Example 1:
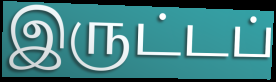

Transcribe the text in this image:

இருட்டப்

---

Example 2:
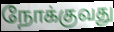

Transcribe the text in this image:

நோக்குவது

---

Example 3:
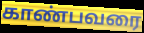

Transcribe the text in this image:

காண்பவரை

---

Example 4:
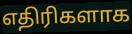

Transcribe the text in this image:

எதிரிகளாக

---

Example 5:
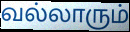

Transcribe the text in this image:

வல்லாரும்